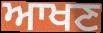
ਆਖਣ